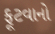
ફૂટવાનો